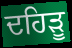
ਦਹਿੜੂ